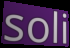
soli